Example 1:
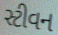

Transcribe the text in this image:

સ્ટીવન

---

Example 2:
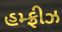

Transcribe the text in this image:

હમ્ફ્રીઝ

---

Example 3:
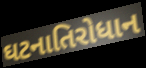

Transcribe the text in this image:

ઘટનાતિરોધાન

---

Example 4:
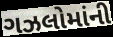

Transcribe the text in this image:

ગઝલોમાંની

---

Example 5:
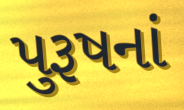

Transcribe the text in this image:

પુરૂષનાં